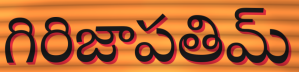
గిరిజాపతిమ్